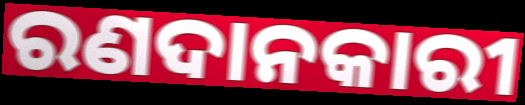
ରଣଦାନକାରୀ